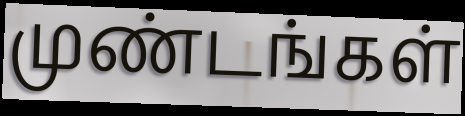
முண்டங்கள்